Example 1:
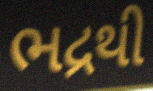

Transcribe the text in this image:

ભદ્રથી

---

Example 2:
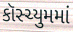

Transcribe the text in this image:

કૉસ્ચ્યુમમાં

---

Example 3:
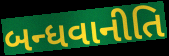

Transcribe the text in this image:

બન્ધવાનીતિ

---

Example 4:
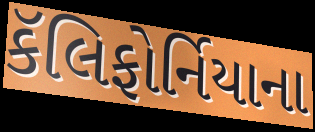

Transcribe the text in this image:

કૅલિફોર્નિયાના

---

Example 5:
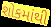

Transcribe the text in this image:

શોકમાંથી